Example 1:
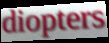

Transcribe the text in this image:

diopters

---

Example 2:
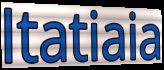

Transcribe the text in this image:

Itatiaia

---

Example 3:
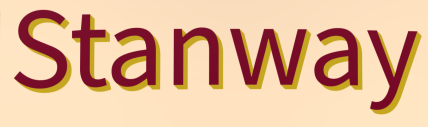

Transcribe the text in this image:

Stanway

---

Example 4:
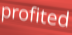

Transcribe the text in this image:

profited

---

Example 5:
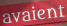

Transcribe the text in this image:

avaient